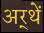
अर्थें